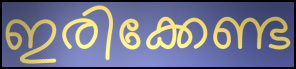
ഇരിക്കേണ്ട